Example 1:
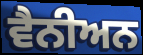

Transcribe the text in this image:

ਵੈਨੀਅਨ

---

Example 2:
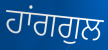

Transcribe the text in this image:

ਹਾਂਗਗੁਲ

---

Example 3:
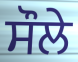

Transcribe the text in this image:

ਸੌਲੇ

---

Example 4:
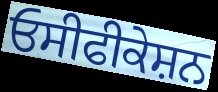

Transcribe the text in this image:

ਓਸੀਫੀਕੇਸ਼ਨ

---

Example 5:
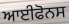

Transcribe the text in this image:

ਆਈਫੋਨਸ